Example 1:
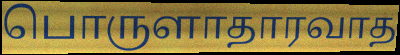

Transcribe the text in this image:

பொருளாதாரவாத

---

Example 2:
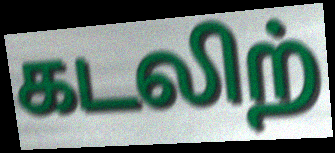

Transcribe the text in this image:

கடலிற்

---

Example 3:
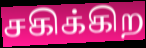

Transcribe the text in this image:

சகிக்கிற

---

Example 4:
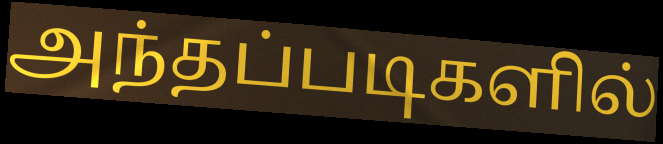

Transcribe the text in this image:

அந்தப்படிகளில்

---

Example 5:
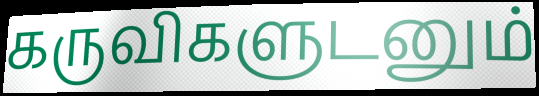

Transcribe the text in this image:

கருவிகளுடனும்